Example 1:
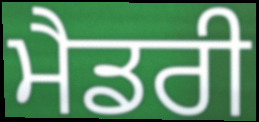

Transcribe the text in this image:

ਮੈਡਰੀ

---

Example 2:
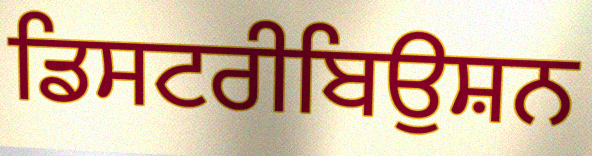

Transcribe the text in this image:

ਡਿਸਟਰੀਬਿਉਸ਼ਨ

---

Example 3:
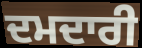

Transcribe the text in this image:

ਦਮਦਾਰੀ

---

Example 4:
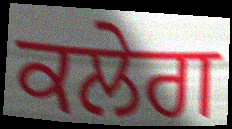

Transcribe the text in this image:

ਕਲੇਗ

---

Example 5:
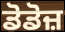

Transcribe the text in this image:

ਡੋਡੋਜ਼